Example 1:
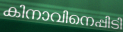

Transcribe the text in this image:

കിനാവിനെപ്പിടി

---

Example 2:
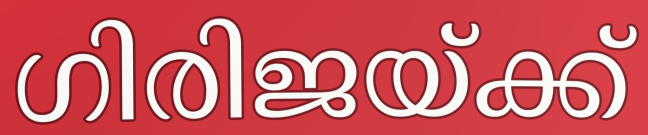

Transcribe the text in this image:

ഗിരിജയ്ക്ക്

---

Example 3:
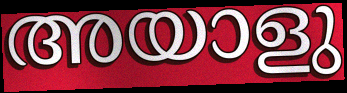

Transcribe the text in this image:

അയാളു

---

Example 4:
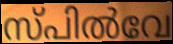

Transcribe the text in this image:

സ്പിൽവേ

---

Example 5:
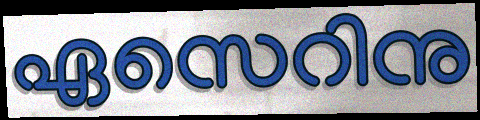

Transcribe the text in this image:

ഏസെറിനു